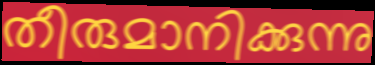
തീരുമാനിക്കുന്നു